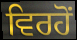
ਵਿਰਹੋਂ